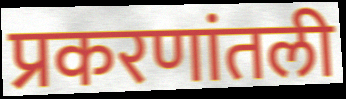
प्रकरणांतली